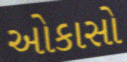
ઓકાસો